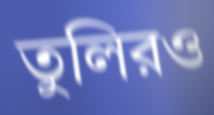
তুলিরও